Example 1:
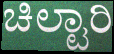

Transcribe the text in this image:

ಚಿಲ್ಟಾರಿ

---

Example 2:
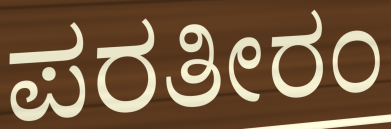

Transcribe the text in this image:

ಪರತೀರಂ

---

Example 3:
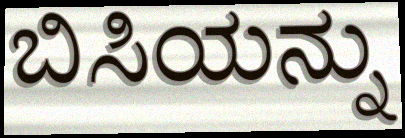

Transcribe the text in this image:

ಬಿಸಿಯನ್ನು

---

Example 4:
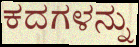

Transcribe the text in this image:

ಕದಗಳನ್ನು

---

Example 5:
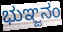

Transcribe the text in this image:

ಭುಞ್ಜನಂ